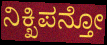
ನಿಕ್ಖಿಪನ್ತೋ